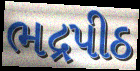
ભદ્રપીઠ